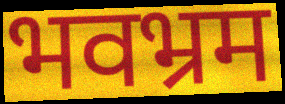
भवभ्रम